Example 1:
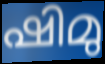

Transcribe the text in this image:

ഷിമു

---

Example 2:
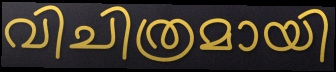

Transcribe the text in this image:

വിചിത്രമായി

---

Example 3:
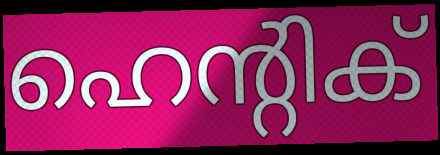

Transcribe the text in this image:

ഹെന്റിക്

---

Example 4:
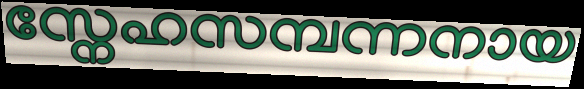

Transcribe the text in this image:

സ്നേഹസമ്പന്നനായ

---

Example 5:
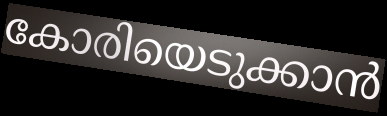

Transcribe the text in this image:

കോരിയെടുക്കാൻ